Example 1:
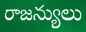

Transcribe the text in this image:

రాజన్యులు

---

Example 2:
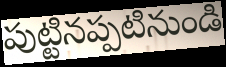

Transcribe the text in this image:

పుట్టినప్పటినుండి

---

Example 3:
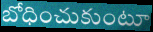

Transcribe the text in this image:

బోధించుకుంటూ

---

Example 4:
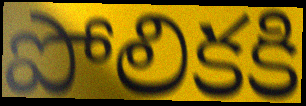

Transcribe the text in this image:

పోలికకి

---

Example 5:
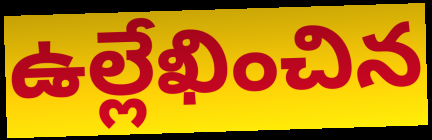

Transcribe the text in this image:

ఉల్లేఖించిన